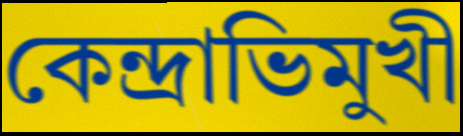
কেন্দ্রাভিমুখী